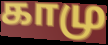
காமு